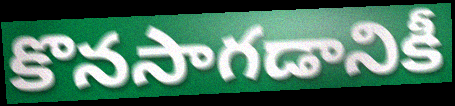
కొనసాగడానికీ